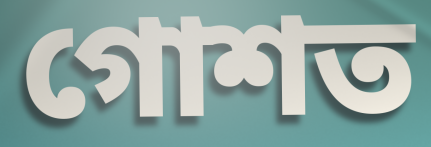
গোশত